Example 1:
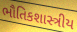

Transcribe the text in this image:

ભૌતિકશાસ્ત્રીય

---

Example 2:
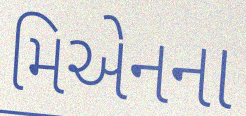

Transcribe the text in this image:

મિએનના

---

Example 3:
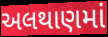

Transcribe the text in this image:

અલથાણમાં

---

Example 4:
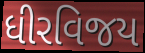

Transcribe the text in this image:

ધીરવિજય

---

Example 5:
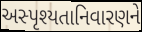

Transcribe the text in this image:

અસ્પૃશ્યતાનિવારણને